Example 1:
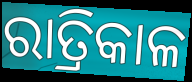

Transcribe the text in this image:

ରାତ୍ରିକାଳ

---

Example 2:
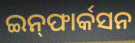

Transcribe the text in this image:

ଇନ୍‌ଫାର୍କସନ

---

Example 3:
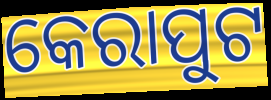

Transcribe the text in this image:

କେରାପୁଟ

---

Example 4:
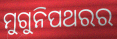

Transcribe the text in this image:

ମୁଗୁନିପଥରର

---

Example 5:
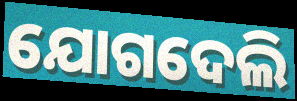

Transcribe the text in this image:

ଯୋଗଦେଲି